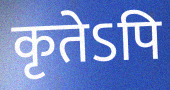
कृतेऽपि